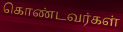
கொண்டவர்கள்